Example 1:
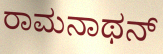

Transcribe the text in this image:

ರಾಮನಾಥನ್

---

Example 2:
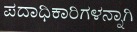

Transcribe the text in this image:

ಪದಾಧಿಕಾರಿಗಳನ್ನಾಗಿ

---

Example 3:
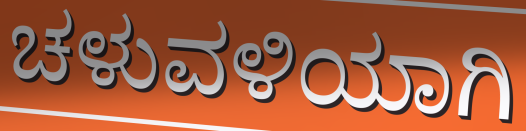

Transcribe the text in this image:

ಚಳುವಳಿಯಾಗಿ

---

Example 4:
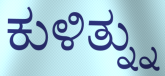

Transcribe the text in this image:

ಕುಳಿತ್ನ್ನು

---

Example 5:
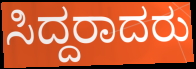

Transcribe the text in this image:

ಸಿದ್ದರಾದರು